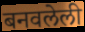
बनवलेली